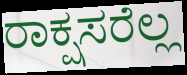
ರಾಕ್ಷಸರೆಲ್ಲ